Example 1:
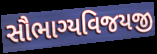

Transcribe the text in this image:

સૌભાગ્યવિજયજી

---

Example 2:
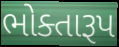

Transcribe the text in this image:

ભોક્તારૂપ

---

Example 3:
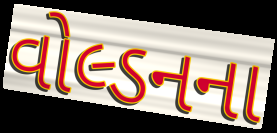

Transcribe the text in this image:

વોલ્ડનના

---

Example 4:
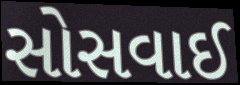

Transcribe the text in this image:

સોસવાઈ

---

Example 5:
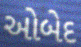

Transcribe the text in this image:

ઓબેદ